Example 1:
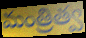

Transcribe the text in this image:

మంత్రిత్వ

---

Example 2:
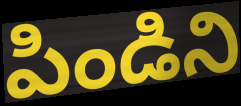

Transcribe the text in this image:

పిండిని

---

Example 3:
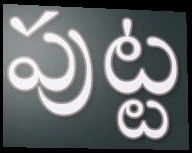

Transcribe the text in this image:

పుట్ట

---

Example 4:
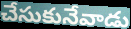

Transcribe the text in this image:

చేసుకునేవాడు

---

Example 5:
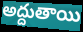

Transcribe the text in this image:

అద్దుతాయి